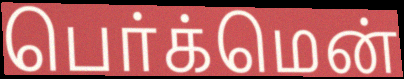
பெர்க்மென்